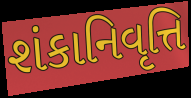
શંકાનિવૃત્તિ